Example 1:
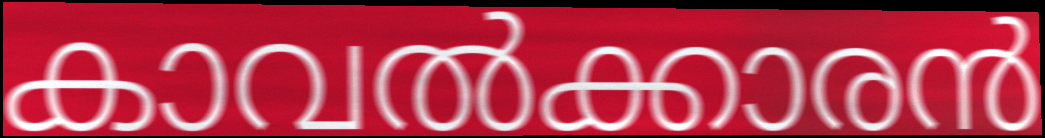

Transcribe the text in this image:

കാവൽക്കാരൻ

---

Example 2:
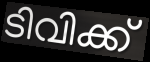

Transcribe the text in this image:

ടിവിക്ക്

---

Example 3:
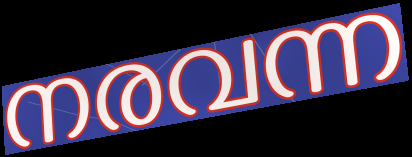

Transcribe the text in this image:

നരവന്ന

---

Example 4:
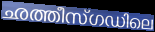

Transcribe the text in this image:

ഛത്തീസ്ഗഡിലെ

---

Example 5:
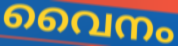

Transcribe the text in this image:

വൈനം